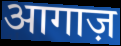
आगाज़